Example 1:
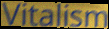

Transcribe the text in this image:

Vitalism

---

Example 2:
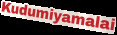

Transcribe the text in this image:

Kudumiyamalai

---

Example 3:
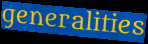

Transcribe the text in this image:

generalities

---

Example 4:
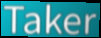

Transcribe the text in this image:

Taker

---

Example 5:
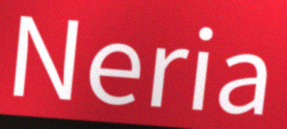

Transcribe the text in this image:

Neria